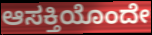
ಆಸಕ್ತಿಯೊಂದೇ